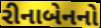
રીનાબેનનો